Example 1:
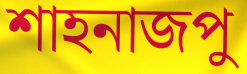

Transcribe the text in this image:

শাহনাজপু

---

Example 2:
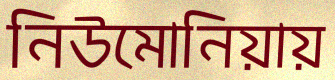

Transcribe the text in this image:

নিউমোনিয়ায়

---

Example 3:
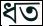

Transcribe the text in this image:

ধত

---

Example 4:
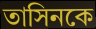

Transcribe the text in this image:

তাসিনকে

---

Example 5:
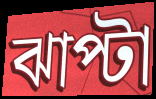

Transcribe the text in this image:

ঝাপ্টা